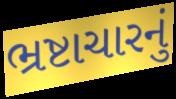
ભ્રષ્ટાચારનું